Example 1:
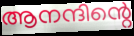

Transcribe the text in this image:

ആനന്ദിന്റെ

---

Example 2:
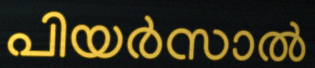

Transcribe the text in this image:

പിയർസാൽ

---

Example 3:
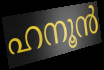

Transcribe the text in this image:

ഹനൂൻ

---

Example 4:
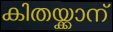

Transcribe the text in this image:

കിതയ്ക്കാന്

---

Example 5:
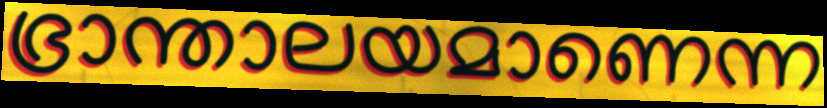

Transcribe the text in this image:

ഭ്രാന്താലയമാണെന്ന